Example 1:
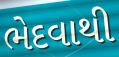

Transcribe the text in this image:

ભેદવાથી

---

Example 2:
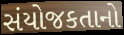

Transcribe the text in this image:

સંયોજકતાનો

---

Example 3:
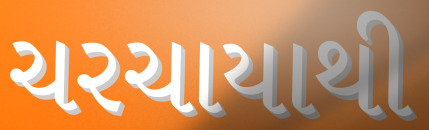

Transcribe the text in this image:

ચરચાયાથી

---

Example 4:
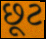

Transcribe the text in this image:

છૂટ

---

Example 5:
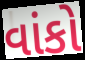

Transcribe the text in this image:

વાંકો